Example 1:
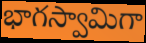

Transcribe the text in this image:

భాగస్వామిగా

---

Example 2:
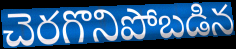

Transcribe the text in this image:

చెరగొనిపోబడిన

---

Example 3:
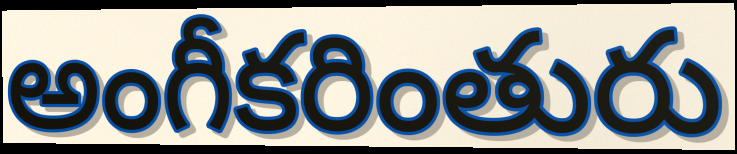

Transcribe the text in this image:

అంగీకరింతురు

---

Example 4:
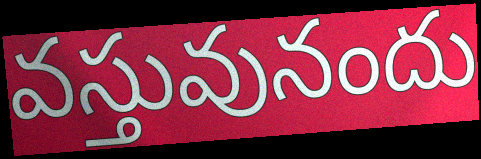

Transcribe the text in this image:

వస్తువునందు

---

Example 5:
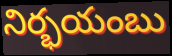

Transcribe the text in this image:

నిర్భయంబు